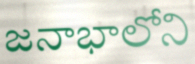
జనాభాలోని